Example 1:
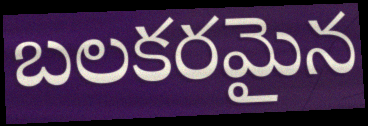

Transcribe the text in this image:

బలకరమైన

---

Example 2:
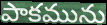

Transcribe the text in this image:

పాకమును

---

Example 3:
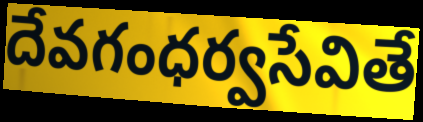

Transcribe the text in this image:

దేవగంధర్వసేవితే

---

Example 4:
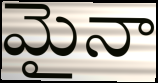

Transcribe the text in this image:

మైనా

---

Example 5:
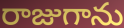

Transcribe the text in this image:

రాజుగాను